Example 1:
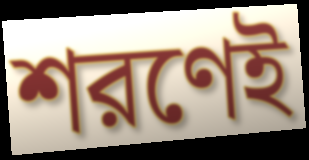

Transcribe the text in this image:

শরণেই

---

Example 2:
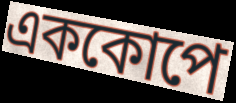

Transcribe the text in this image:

এককোপে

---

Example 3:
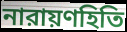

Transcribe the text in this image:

নারায়ণহিতি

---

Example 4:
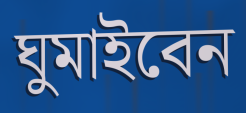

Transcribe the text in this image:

ঘুমাইবেন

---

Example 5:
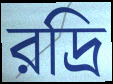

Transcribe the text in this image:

রদ্রি